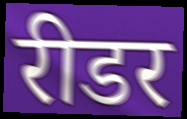
रीडर